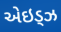
એઇડ્ઝ